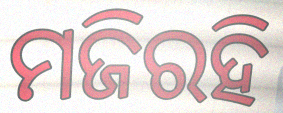
ମଜିରହି